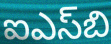
ఐఎస్‌బి